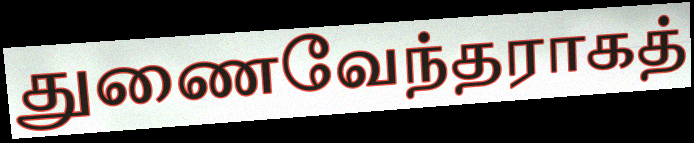
துணைவேந்தராகத்